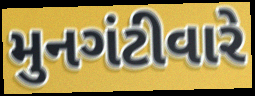
મુનગંટીવારે